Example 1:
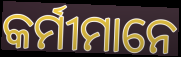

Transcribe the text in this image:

କର୍ମୀମାନେ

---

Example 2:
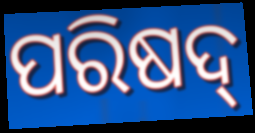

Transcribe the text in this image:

ପରିଷଦ୍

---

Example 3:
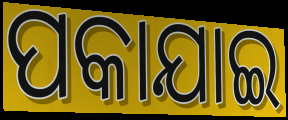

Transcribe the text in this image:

ପକାଯାଇ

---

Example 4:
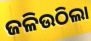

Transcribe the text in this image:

ଜଳିଉଠିଲା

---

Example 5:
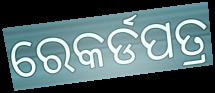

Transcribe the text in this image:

ରେକର୍ଡପତ୍ର